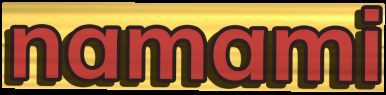
namami